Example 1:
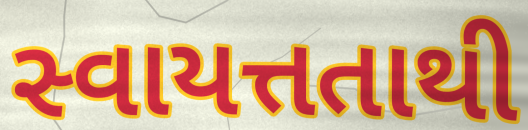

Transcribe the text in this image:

સ્વાયત્તતાથી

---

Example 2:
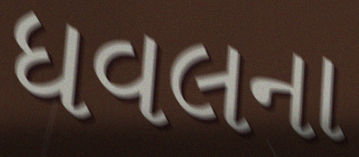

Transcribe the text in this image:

ધવલના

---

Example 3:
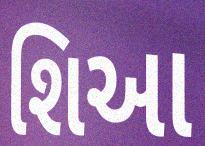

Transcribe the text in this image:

શિઆ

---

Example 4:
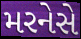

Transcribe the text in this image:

મરનેસે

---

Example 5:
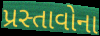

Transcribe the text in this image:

પ્રસ્તાવોના